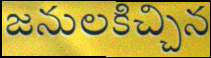
జనులకిచ్చిన